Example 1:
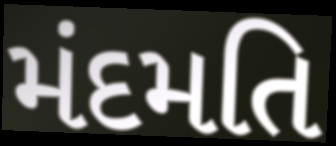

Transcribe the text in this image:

મંદમતિ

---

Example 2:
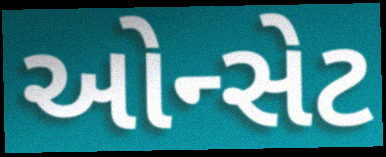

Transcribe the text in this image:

ઓન્સેટ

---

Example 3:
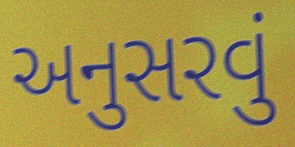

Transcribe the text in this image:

અનુસરવું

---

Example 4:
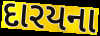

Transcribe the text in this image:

દારયના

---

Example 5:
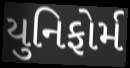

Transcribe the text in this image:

યુનિફોર્મ